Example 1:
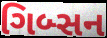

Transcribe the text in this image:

ગિબ્સન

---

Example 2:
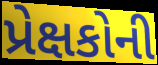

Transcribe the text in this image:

પ્રેક્ષકોની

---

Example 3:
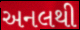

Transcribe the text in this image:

અનલથી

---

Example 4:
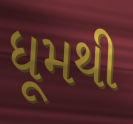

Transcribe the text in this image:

ધૂમથી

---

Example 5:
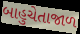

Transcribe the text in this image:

બાહુચેતાજાળ